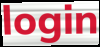
login